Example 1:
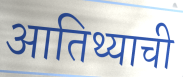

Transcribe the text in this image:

आतिथ्याची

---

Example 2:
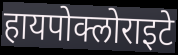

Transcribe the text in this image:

हायपोक्लोराइटे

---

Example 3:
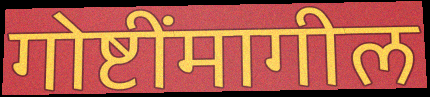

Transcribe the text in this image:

गोष्टींमागील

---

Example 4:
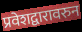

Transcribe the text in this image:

प्रवेशद्वारावरुन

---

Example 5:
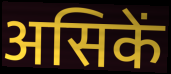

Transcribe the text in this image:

असिकें